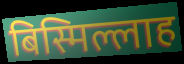
बिस्मिल्लाह